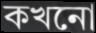
কখনো